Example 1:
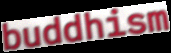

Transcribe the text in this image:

buddhism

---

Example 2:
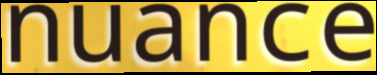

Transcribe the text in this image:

nuance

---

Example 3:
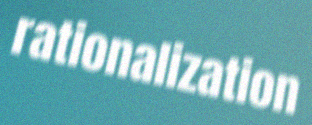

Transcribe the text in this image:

rationalization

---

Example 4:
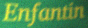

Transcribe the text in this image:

Enfantin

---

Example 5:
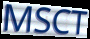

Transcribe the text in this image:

MSCT